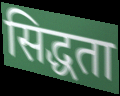
सिद्धता